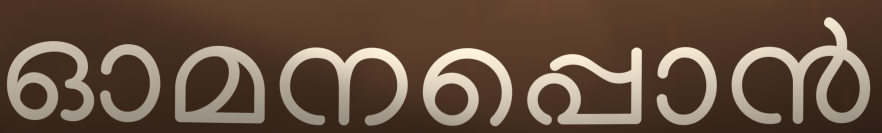
ഓമനപ്പൊൻ